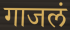
गाजलं